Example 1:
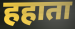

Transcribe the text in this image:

हहाता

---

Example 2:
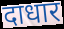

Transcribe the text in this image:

दाधार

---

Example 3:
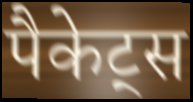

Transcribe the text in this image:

पैकेट्स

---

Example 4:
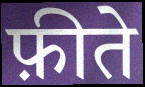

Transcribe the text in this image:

फ़ीते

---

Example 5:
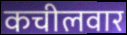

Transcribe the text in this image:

कचीलवार